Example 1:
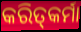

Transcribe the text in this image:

କରିତ୍‍କର୍ମା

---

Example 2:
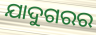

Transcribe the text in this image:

ଯାଦୁଗରର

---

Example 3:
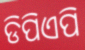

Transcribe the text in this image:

ଡିପିଏପି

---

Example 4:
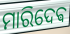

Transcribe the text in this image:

ମାରିଦେଵ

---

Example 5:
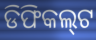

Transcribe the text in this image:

ଡିଫିକଲ୍‌ଟ